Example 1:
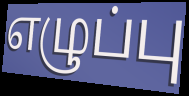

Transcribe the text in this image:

எழுப்பு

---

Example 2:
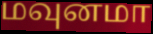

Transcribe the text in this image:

மவுனமா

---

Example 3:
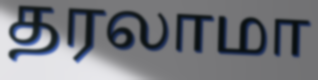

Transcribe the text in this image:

தரலாமா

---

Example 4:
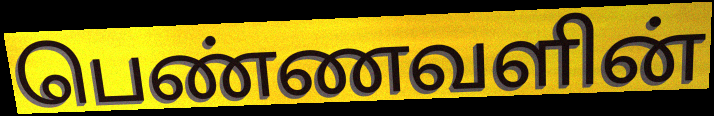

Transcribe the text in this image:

பெண்ணவளின்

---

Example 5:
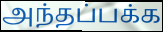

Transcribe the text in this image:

அந்தப்பக்க